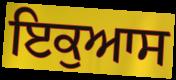
ਇਕੁਆਸ